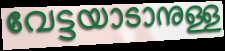
വേട്ടയാടാനുള്ള